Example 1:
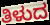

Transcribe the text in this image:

ತಿಳುದ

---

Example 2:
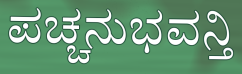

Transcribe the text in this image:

ಪಚ್ಚನುಭವನ್ತಿ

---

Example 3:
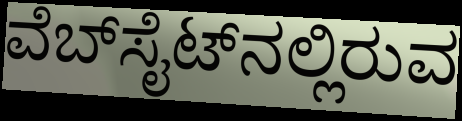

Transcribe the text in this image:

ವೆಬ್‌ಸೈಟ್‌ನಲ್ಲಿರುವ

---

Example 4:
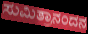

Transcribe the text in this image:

ಸುಮಿತ್ರಾನಂದನ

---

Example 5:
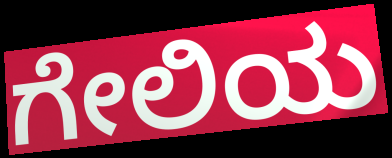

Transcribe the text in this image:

ಗೇಲಿಯ